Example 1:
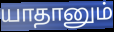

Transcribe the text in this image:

யாதானும்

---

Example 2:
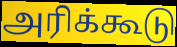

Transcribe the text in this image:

அரிக்கூடு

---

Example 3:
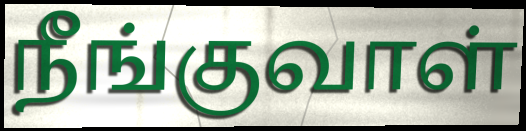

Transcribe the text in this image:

நீங்குவாள்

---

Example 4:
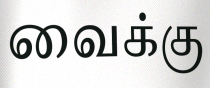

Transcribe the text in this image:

வைக்கு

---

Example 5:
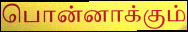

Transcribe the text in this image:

பொன்னாக்கும்